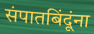
संपातबिंदूंना